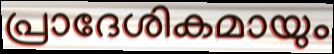
പ്രാദേശികമായും